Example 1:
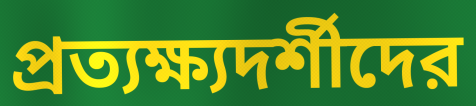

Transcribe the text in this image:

প্রত্যক্ষ্যদর্শীদের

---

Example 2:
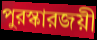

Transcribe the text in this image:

পুরস্কারজয়ী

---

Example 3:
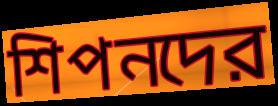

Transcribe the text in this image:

শিপনদের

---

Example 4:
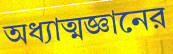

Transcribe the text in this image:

অধ্যাত্মজ্ঞানের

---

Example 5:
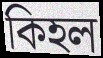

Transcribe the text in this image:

কিহল